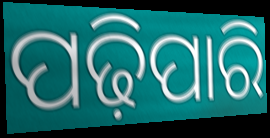
ପଢ଼ିପାରି